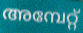
അമ്പേറ്റ്